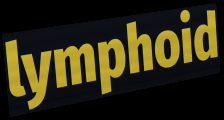
lymphoid